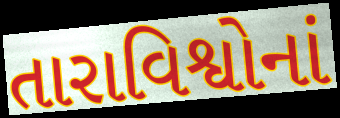
તારાવિશ્વોનાં